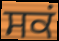
ਸਕਂ